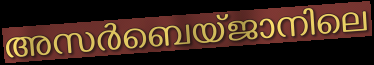
അസർബെയ്ജാനിലെ